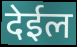
देईल